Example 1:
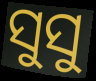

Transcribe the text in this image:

ସୁସୁ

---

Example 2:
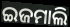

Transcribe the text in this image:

ଇଜମାଲି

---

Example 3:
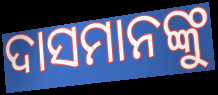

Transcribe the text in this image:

ଦାସମାନଙ୍କୁ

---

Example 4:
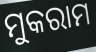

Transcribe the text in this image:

ମୁକରାମ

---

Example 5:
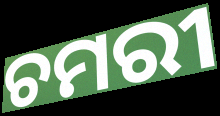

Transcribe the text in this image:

ଚମରୀ